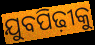
ଯୁବପିଢ଼ୀକୁ